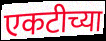
एकटीच्या